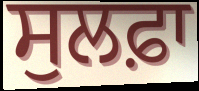
ਸੁਲਫ਼ਾ